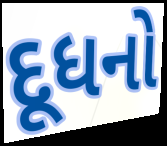
દૂધનો